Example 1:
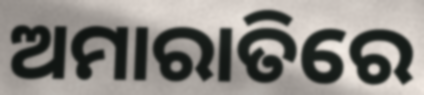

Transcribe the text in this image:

ଅମାରାତିରେ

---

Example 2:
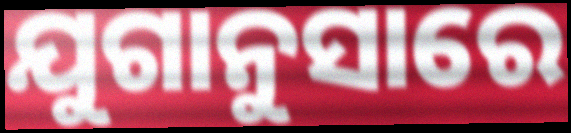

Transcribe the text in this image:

ଯୁଗାନୁସାରେ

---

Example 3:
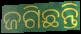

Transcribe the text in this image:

ଜଗିଛନ୍ତି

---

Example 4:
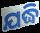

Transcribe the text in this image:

ଯଦ୍ଧି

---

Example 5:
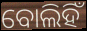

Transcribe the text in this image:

ବୋଲିହିଁ